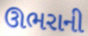
ઊભરાની